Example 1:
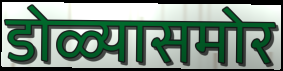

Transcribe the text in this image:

डोळ्यासमोर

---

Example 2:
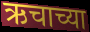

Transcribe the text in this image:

ऋचाच्या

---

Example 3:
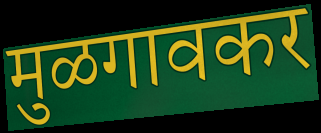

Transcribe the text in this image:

मुळगावकर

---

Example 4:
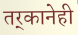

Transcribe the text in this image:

तर्कानेही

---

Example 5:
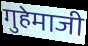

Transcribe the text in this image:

गुहेमाजी